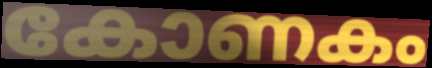
കോണകം